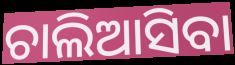
ଚାଲିଆସିବା